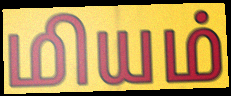
மியம்